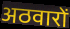
अठवारों